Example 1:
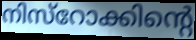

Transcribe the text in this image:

നിസ്റോക്കിന്റെ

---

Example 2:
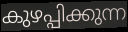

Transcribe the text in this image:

കുഴപ്പിക്കുന്ന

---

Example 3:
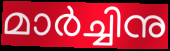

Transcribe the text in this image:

മാർച്ചിനു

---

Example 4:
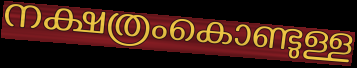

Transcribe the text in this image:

നക്ഷത്രംകൊണ്ടുള്ള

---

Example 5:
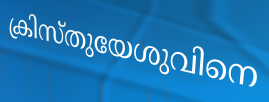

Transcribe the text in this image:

ക്രിസ്തുയേശുവിനെ